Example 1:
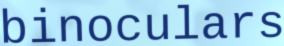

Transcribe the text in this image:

binoculars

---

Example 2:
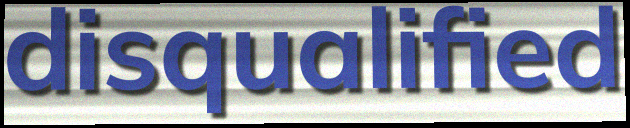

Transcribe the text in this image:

disqualified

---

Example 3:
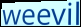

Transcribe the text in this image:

weevil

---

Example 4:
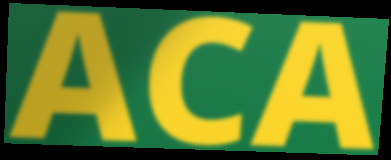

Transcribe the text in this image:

ACA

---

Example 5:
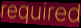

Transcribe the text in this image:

required